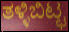
ತಳ್ಳಿಬಿಟ್ಟ